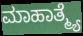
ಮಾಹಾತ್ಮ್ಯೆ